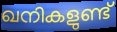
ഖനികളുണ്ട്